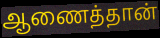
ஆணைத்தான்